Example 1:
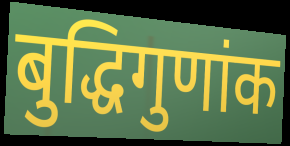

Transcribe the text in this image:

बुद्धिगुणांक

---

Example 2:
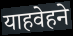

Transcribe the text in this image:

याहवेहने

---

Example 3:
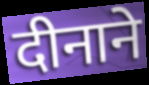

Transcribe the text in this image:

दीनाने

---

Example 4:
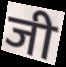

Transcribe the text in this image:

जी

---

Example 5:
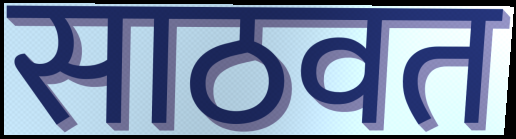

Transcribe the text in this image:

साठवत